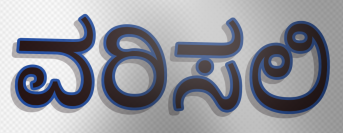
ವರಿಸಲಿ